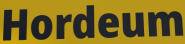
Hordeum